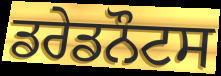
ਡਰੇਡਨੌਟਸ